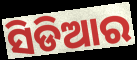
ସିଡିଆର